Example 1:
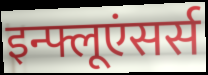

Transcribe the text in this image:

इन्फ्लूएंसर्स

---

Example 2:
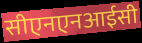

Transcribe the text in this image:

सीएनएनआईसी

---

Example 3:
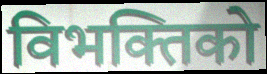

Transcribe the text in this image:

विभक्तिको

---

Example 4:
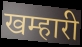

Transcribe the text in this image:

खम्हारी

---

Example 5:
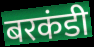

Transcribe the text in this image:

बरकंडी